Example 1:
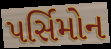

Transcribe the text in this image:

પર્સિમોન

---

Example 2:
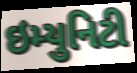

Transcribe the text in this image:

ઇમ્યુનિટી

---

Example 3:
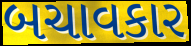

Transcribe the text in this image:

બચાવકાર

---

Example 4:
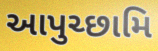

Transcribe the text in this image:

આપુચ્છામિ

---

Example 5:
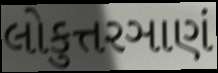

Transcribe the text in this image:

લોકુત્તરઞાણં